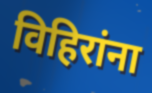
विहिरांना